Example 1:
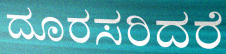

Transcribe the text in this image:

ದೂರಸರಿದರೆ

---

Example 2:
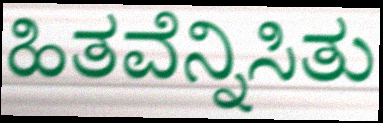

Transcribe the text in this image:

ಹಿತವೆನ್ನಿಸಿತು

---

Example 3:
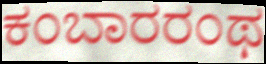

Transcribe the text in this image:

ಕಂಬಾರರಂಥ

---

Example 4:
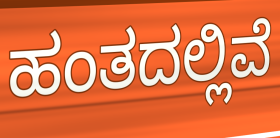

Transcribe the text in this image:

ಹಂತದಲ್ಲಿವೆ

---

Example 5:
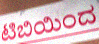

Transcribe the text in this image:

ಟಿಬಿಯಿಂದ